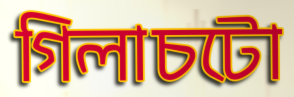
গিলাচটো